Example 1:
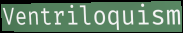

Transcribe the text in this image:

Ventriloquism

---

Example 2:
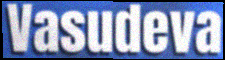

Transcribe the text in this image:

Vasudeva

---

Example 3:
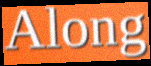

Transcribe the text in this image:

Along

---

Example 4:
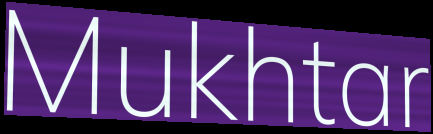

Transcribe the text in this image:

Mukhtar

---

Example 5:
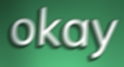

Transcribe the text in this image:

okay